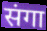
संगा